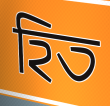
হিত